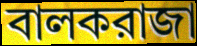
বালকরাজা